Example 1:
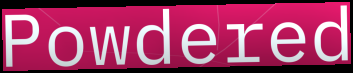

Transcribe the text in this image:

Powdered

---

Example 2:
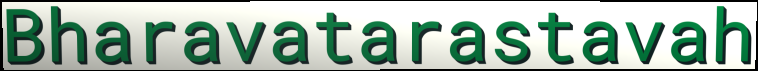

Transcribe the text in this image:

Bharavatarastavah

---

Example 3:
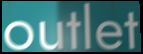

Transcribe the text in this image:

outlet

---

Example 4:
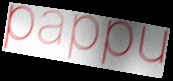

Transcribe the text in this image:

pappu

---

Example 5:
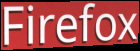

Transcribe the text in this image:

Firefox